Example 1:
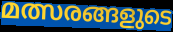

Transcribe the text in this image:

മത്സരങ്ങളുടെ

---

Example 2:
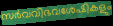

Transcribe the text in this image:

സർവവിഭവശേഷികളും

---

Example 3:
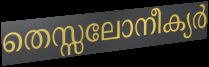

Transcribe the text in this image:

തെസ്സലോനീക്യർ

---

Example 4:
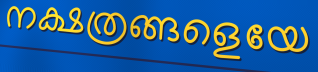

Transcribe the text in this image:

നക്ഷത്രങ്ങളെയേ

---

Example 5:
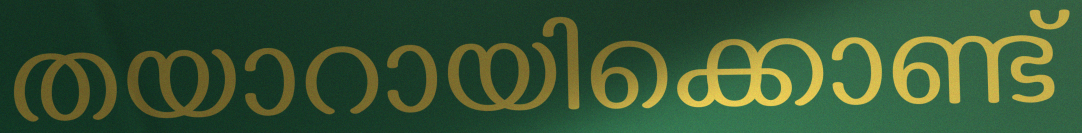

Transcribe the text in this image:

തയാറായിക്കൊണ്ട്